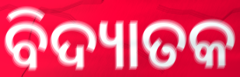
ବିଦ୍ୟାତକ